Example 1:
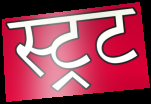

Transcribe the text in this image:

स्ट्रट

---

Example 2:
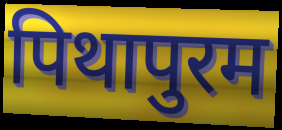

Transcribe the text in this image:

पिथापुरम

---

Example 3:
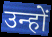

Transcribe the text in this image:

उन्हों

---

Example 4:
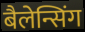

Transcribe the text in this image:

बैलेन्सिंग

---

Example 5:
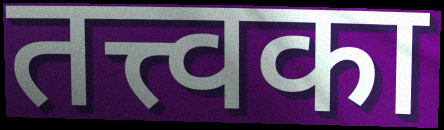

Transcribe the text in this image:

तत्त्वका